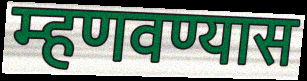
म्हणवण्यास